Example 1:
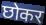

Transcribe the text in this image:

छोकर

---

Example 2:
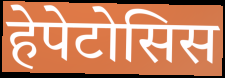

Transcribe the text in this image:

हेपेटोसिस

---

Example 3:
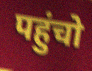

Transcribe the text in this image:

पहुंचो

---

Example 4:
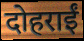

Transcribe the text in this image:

दोहराईं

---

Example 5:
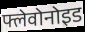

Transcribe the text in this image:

फ्लेवोनोइड